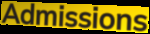
Admissions